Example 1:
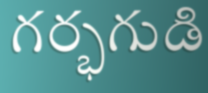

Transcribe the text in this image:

గర్భగుడి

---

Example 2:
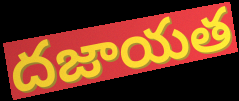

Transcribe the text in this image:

దజాయత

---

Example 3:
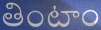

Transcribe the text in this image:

తింటాం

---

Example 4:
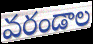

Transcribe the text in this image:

వరండాల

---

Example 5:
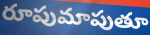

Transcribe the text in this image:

రూపుమాపుతూ